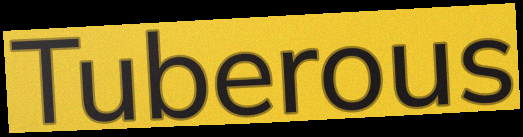
Tuberous